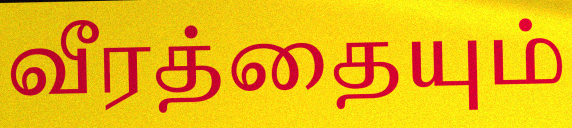
வீரத்தையும்